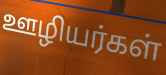
ஊழியர்கள்